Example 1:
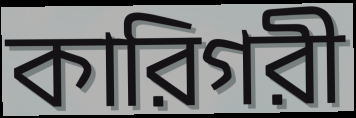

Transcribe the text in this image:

কারিগরী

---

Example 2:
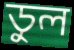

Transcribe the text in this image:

ডুল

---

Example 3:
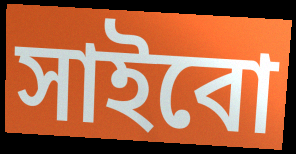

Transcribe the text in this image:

সাইবো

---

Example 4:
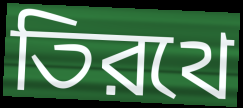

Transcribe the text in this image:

তিরথে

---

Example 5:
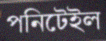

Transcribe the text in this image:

পনিটেইল